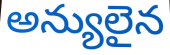
అన్యులైన